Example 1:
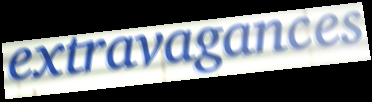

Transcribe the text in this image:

extravagances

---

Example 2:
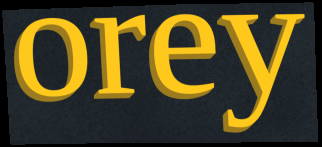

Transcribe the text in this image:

orey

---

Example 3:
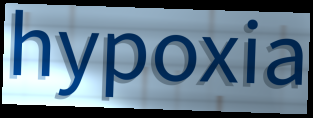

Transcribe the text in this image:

hypoxia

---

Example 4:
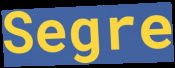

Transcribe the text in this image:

Segre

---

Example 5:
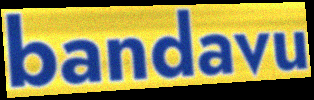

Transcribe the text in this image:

bandavu